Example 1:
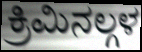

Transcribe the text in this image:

ಕ್ರಿಮಿನಲ್ಗಳ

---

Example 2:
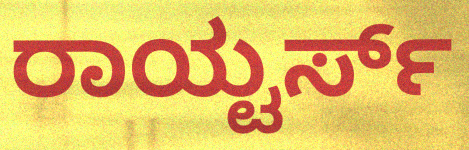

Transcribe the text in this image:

ರಾಯ್ಟರ್ಸ್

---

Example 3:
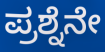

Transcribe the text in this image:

ಪ್ರಶ್ನೆನೇ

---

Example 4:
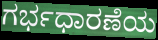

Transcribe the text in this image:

ಗರ್ಭಧಾರಣೆಯ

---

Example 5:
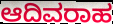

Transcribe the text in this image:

ಆದಿವರಾಹ